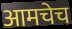
आमचेच